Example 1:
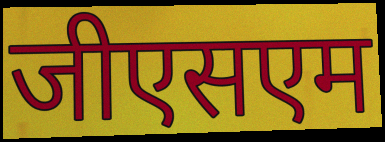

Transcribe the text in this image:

जीएसएम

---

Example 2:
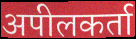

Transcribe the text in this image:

अपीलकर्ता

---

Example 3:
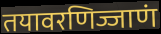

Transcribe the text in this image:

तयावरणिज्जाणं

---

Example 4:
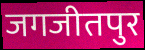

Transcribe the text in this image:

जगजीतपुर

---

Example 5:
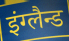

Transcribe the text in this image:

इंग्लैन्ड